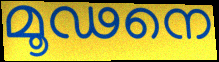
മൂഢനെ